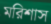
মরিশাস